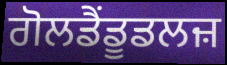
ਗੋਲਡੈਂਡੂਡਲਜ਼